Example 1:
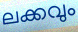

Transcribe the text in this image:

ലക്കവും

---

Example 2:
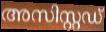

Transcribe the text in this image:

അസിസ്റ്റഡ്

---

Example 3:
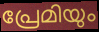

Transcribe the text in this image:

പ്രേമിയും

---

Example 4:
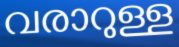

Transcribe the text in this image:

വരാറുള്ള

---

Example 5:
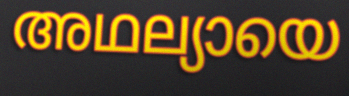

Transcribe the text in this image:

അഥല്യായെ